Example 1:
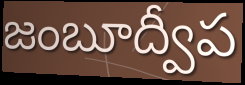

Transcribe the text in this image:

జంబూద్వీప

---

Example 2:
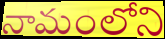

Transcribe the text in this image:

నామంలోని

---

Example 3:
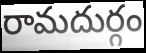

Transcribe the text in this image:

రామదుర్గం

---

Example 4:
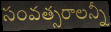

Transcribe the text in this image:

సంవత్సరాలన్నీ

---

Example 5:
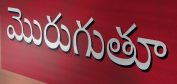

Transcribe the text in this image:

మొరుగుతూ